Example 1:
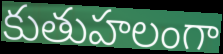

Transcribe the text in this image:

కుతుహలంగా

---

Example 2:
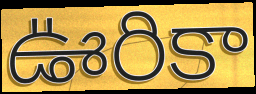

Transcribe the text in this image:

ఊరికా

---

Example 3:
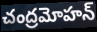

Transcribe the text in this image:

చంద్రమోహన్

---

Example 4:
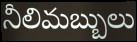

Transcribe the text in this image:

నీలిమబ్బులు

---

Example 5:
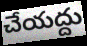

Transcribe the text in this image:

చేయద్దు